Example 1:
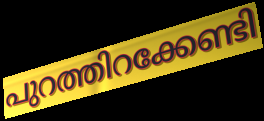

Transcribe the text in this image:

പുറത്തിറക്കേണ്ടി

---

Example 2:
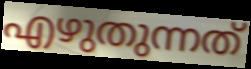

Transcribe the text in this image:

എഴുതുന്നത്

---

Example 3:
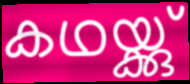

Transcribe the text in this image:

കഥയ്ക്കു്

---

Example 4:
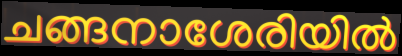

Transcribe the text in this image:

ചങ്ങനാശേരിയിൽ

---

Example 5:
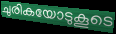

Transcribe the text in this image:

ചുരികയോടുകൂടെ